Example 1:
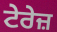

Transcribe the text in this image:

ਟੇਰੇਜ਼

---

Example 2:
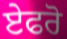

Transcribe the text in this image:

ਏਫਰੋ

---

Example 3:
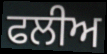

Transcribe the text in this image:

ਫਲੀਅ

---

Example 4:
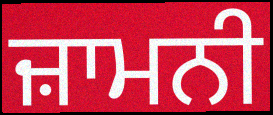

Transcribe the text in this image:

ਜ਼ਾਮਨੀ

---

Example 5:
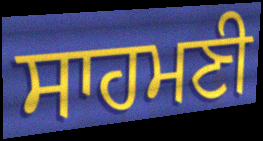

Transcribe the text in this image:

ਸਾਹਮਣੀ